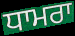
ਧਾਮਰਾ